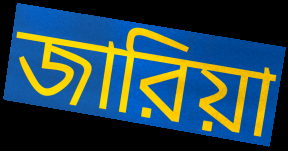
জারিয়া